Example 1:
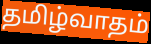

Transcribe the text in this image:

தமிழ்வாதம்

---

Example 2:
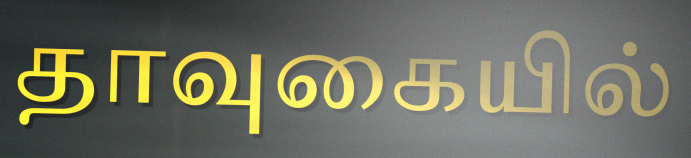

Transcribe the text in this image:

தாவுகையில்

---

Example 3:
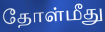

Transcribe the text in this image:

தோள்மீது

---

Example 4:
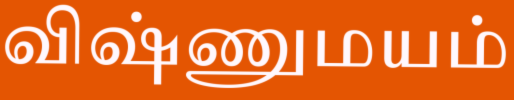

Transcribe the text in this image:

விஷ்ணுமயம்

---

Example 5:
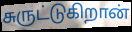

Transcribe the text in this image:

சுருட்டுகிறான்